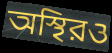
অস্থিরও